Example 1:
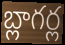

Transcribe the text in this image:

బ్లాగర్ల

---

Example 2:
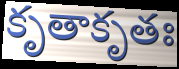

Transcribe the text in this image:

కృతాకృతః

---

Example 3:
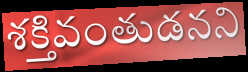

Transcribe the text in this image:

శక్తివంతుడనని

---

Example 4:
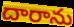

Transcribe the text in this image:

దారాను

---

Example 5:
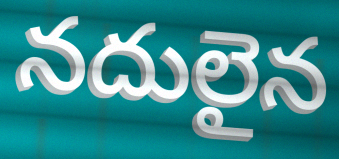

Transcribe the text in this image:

నదులైన